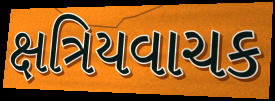
ક્ષત્રિયવાચક